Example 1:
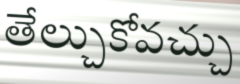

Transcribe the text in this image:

తేల్చుకోవచ్చు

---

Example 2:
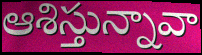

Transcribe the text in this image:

ఆశిస్తున్నావా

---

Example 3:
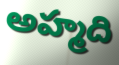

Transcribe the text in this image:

అహ్మది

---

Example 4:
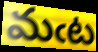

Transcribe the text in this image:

మఁట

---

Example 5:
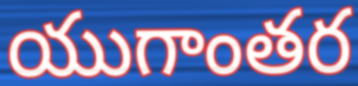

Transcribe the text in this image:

యుగాంతర